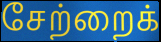
சேற்றைக்